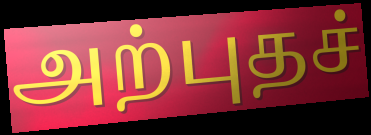
அற்புதச்